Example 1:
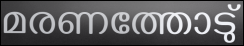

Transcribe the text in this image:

മരണത്തോടു്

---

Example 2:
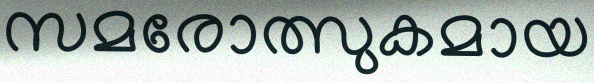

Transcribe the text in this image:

സമരോത്സുകമായ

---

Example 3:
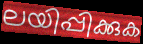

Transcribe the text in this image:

ലയിപ്പിക്കുക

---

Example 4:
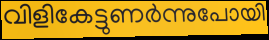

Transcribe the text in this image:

വിളികേട്ടുണർന്നുപോയി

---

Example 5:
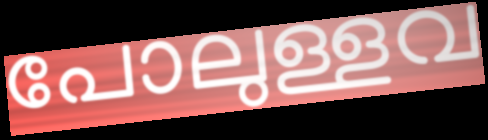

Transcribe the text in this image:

പോലുള്ളവ